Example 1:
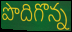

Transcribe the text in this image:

పొదిగొన్న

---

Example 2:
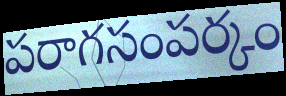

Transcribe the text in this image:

పరాగసంపర్కం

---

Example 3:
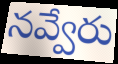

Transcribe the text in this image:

నవ్వేరు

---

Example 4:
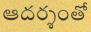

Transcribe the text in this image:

ఆదర్శంతో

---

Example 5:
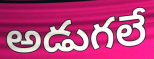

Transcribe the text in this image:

అడుగలే